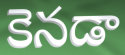
కెనడా